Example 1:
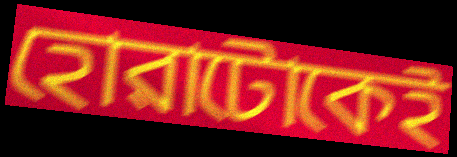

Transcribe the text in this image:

হোৱাটোকেই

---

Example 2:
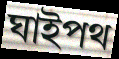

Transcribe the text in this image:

ঘাইপথ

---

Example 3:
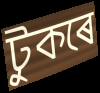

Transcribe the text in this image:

টুকৰে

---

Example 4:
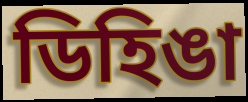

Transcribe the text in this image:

ডিহিঙা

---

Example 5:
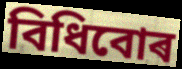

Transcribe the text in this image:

বিধিবোৰ